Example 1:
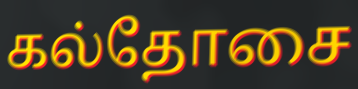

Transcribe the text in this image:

கல்தோசை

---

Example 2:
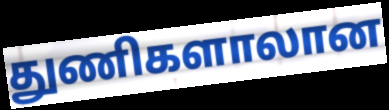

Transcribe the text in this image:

துணிகளாலான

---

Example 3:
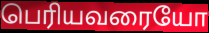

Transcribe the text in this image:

பெரியவரையோ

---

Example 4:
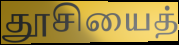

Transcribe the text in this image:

தூசியைத்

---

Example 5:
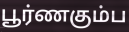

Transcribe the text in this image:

பூர்ணகும்ப